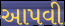
આપવી